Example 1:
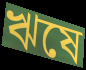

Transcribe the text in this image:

ঋষে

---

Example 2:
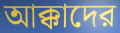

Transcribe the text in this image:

আক্কাদের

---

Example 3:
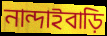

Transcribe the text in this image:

নান্দাইবাড়ি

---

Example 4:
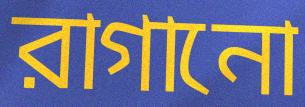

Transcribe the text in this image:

রাগানো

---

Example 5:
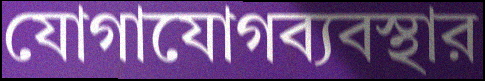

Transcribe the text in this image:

যোগাযোগব্যবস্থার